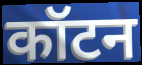
कॉटन